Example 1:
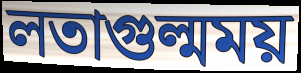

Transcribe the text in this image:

লতাগুল্মময়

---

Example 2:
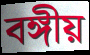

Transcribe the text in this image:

বঙ্গীয়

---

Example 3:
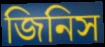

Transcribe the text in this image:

জিনিস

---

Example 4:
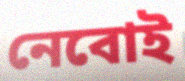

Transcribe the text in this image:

নেবোই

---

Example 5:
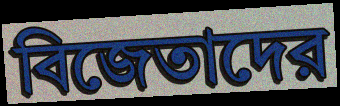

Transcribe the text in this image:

বিজেতাদের